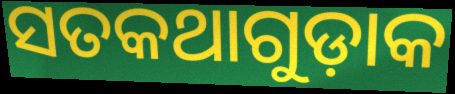
ସତକଥାଗୁଡ଼ାକ